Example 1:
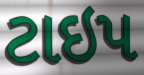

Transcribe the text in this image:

ટાઇપ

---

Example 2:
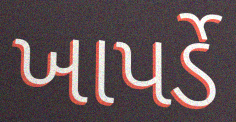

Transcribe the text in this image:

ખાપર્ડે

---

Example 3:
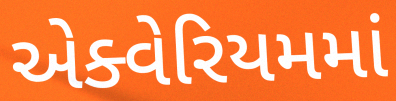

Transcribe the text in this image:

એક્વેરિયમમાં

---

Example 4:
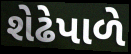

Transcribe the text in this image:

શેઢેપાળે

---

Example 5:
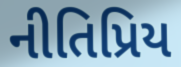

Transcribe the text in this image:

નીતિપ્રિય